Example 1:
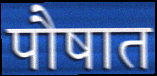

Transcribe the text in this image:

पौषात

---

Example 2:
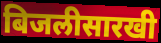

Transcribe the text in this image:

बिजलीसारखी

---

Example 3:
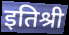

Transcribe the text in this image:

इतिश्री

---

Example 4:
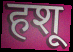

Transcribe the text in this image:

हशू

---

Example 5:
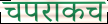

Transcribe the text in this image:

चपराकच